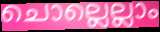
ചൊല്ലെല്ലാം